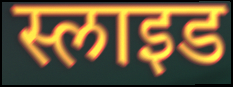
स्लाइड